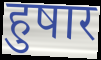
हुषार